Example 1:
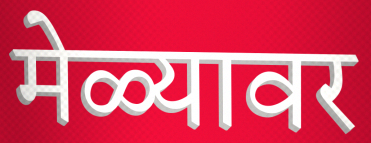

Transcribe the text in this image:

मेळ्यावर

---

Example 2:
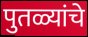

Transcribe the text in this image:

पुतळ्यांचे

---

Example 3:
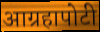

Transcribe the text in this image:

आग्रहापोटी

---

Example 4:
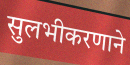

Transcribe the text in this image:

सुलभीकरणाने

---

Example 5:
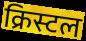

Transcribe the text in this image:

क्रिस्टल